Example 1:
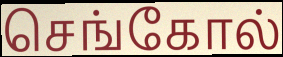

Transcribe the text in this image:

செங்கோல்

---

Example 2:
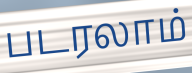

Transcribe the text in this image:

படரலாம்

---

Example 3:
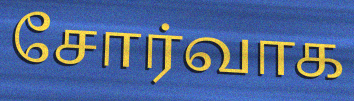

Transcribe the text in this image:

சோர்வாக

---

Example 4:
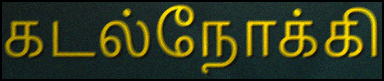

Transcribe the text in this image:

கடல்நோக்கி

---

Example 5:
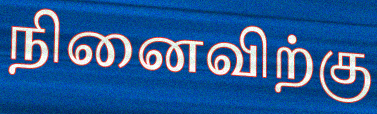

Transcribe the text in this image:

நினைவிற்கு